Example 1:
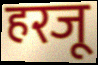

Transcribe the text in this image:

हरजू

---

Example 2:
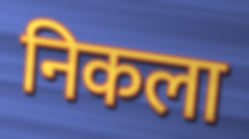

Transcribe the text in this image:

निकला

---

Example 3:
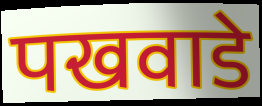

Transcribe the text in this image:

पखवाडे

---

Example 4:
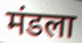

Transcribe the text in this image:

मंडला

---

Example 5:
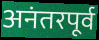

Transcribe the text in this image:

अनंतरपूर्व